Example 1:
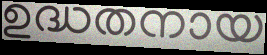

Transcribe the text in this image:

ഉദ്ധതനായ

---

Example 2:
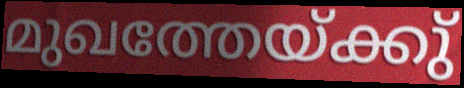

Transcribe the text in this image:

മുഖത്തേയ്ക്കു്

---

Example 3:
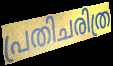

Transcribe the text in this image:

പ്രതിചരിത്ര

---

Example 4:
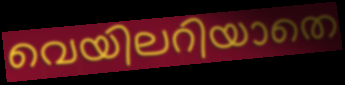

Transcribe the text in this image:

വെയിലറിയാതെ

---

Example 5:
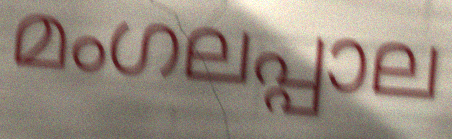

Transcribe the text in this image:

മംഗലപ്പാല